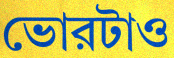
ভোরটাও